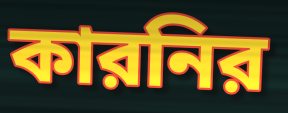
কারনির